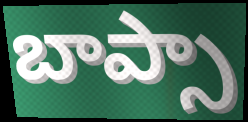
బాప్సా